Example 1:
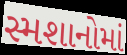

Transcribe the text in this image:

સ્મશાનોમાં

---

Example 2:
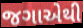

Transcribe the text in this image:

જગાએથી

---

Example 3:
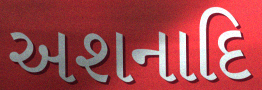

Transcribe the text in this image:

અશનાદિ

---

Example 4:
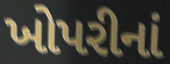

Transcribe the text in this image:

ખોપરીનાં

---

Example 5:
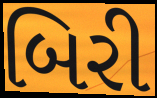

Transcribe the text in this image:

બિરી